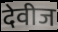
देवीज